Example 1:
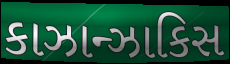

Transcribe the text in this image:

કાઝાન્ઝાકિસ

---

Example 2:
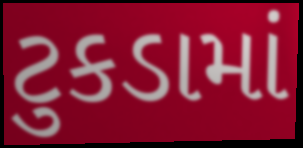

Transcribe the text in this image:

ટુકડામાં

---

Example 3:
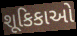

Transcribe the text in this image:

શૂકિકાઓ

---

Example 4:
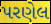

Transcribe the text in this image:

પરણેલ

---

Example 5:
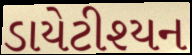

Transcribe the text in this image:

ડાયેટીશ્યન